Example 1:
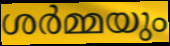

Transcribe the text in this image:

ശർമ്മയും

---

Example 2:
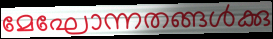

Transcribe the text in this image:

മേഘോന്നതങ്ങൾക്കു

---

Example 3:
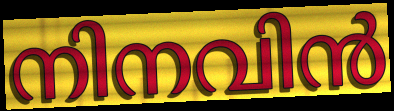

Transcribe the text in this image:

നിനവിൻ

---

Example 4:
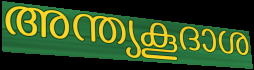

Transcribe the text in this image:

അന്ത്യകൂദാശ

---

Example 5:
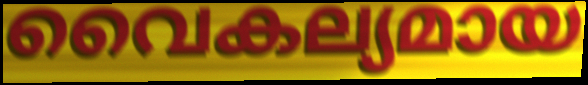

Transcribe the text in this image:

വൈകല്യമായ